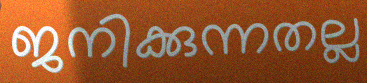
ജനിക്കുന്നതല്ല